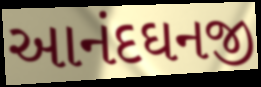
આનંદઘનજી